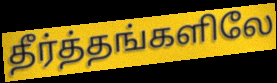
தீர்த்தங்களிலே